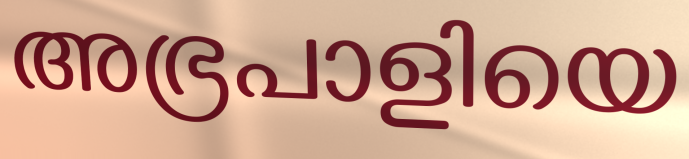
അഭ്രപാളിയെ